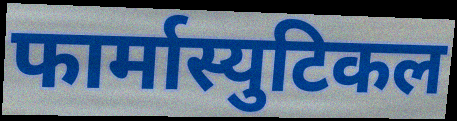
फार्मास्युटिकल